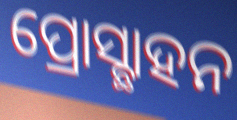
ପ୍ରୋସ୍ଛାହନ